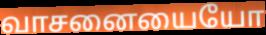
வாசனையையோ